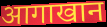
आगाखान